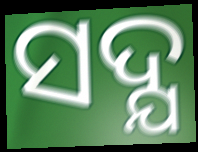
ସଦ୍ଯ